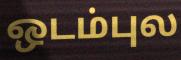
ஒடம்புல